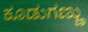
ಕೂಡುಗಣ್ಣು